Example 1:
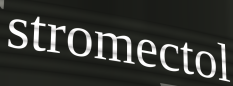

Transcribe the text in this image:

stromectol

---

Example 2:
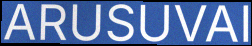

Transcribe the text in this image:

ARUSUVAI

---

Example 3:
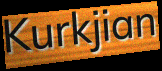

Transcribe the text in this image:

Kurkjian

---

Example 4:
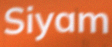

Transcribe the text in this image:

Siyam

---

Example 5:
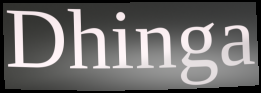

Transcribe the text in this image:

Dhinga